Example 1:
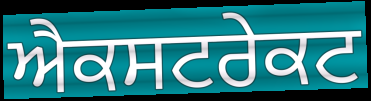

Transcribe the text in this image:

ਐਕਸਟਰੇਕਟ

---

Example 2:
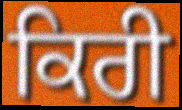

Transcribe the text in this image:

ਕਿਰੀ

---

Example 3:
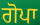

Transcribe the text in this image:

ਗੋਪਾ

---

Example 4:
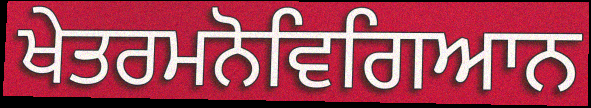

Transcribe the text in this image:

ਖੇਤਰਮਨੋਵਿਗਿਆਨ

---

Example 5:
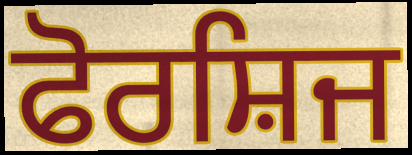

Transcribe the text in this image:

ਫੋਰਸ਼ਿਜ